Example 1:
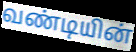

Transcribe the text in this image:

வண்டியின்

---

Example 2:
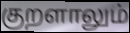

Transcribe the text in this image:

குறளாலும்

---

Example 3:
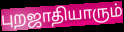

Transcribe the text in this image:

புறஜாதியாரும்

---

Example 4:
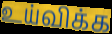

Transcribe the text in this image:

உய்விக்க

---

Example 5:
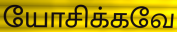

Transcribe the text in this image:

யோசிக்கவே